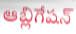
ఆబ్లిగేషన్